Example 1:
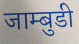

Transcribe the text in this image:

जाम्बुडी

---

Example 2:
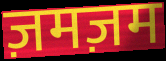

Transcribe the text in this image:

ज़मज़म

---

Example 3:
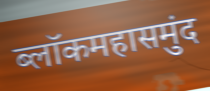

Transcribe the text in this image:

ब्लॉकमहासमुंद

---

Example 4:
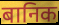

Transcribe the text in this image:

बानिक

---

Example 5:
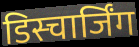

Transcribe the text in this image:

डिस्चार्जिंग